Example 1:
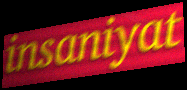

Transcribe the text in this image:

insaniyat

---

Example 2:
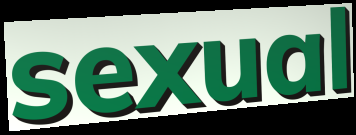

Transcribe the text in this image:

sexual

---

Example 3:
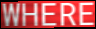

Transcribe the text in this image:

WHERE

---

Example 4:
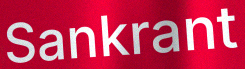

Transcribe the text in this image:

Sankrant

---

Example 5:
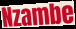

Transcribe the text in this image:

Nzambe